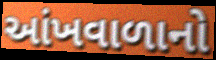
આંખવાળાનો